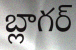
బ్లాగర్